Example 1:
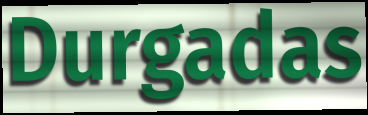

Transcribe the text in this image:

Durgadas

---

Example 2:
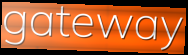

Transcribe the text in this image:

gateway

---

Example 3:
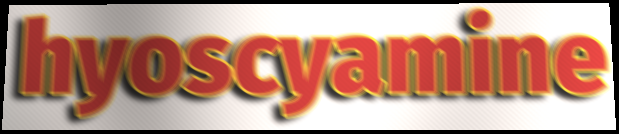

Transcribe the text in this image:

hyoscyamine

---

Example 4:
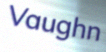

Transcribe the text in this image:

Vaughn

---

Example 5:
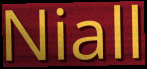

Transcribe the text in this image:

Niall